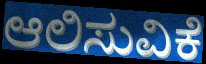
ಆಲಿಸುವಿಕೆ